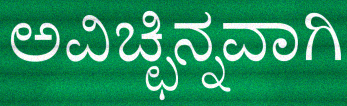
ಅವಿಚ್ಛಿನ್ನವಾಗಿ